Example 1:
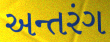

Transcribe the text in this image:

અન્તરંગ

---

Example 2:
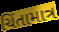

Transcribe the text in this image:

ચિંતામાત્ર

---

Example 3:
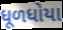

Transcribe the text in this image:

ધૂળધોયા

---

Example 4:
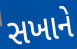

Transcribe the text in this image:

સખાને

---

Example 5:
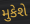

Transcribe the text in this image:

મુકેશે